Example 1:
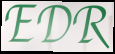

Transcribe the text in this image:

EDR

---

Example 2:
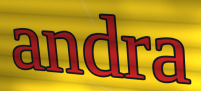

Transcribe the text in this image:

andra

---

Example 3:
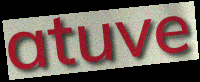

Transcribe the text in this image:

atuve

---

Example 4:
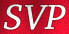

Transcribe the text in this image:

SVP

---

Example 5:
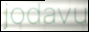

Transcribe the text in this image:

jodavu